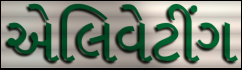
એલિવેટીંગ